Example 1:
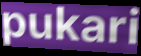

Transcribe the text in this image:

pukari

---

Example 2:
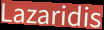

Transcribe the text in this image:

Lazaridis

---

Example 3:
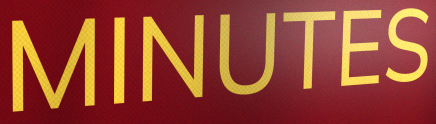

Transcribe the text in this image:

MINUTES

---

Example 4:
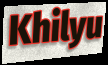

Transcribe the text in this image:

Khilyu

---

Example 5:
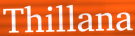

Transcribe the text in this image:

Thillana